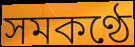
সমকণ্ঠে